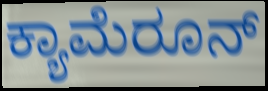
ಕ್ಯಾಮೆರೂನ್